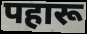
पहारू